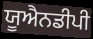
ਯੂਐਨਡੀਪੀ